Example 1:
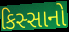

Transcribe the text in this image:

કિસ્સાનો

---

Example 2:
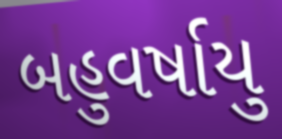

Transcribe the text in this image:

બહુવર્ષાયુ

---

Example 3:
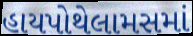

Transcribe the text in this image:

હાયપોથેલામસમાં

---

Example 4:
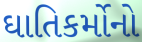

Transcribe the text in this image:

ઘાતિકર્મોનો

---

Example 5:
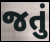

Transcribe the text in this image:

જતું